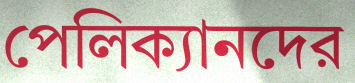
পেলিক্যানদের